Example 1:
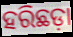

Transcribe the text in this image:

ହରିଛଡ଼ା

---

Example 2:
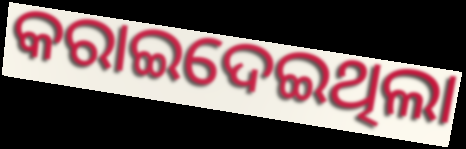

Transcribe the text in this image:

କରାଇଦେଇଥିଲା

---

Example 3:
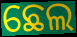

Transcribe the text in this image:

ଛେଲ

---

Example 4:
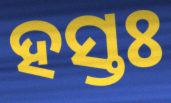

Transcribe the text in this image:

ହସ୍ତଃ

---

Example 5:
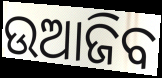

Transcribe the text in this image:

ଉଆଜିବ